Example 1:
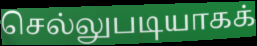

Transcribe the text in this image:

செல்லுபடியாகக்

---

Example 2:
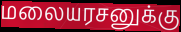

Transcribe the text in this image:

மலையரசனுக்கு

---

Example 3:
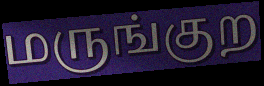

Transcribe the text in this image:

மருங்குற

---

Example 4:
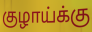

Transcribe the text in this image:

குழாய்க்கு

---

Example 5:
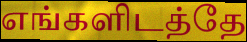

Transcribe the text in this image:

எங்களிடத்தே